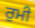
ਰੁਮੀ